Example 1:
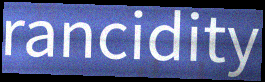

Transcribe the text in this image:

rancidity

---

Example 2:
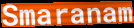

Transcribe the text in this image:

Smaranam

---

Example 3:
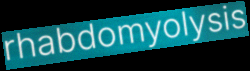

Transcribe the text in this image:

rhabdomyolysis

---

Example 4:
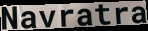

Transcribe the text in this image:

Navratra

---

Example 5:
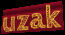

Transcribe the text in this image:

uzak